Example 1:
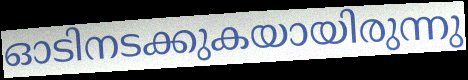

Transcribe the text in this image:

ഓടിനടക്കുകയായിരുന്നു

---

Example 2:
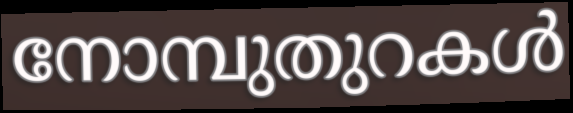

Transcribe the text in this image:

നോമ്പുതുറകൾ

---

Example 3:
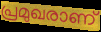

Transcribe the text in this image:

പ്രമുഖരാണ്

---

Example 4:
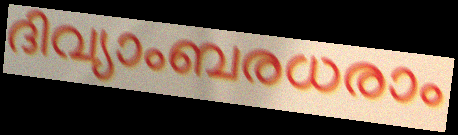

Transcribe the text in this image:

ദിവ്യാംബരധരാം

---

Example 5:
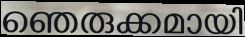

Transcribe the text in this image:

ഞെരുക്കമായി